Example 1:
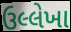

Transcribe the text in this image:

ઉલ્લેખા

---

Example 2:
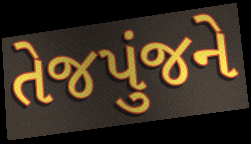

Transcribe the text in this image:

તેજપુંજને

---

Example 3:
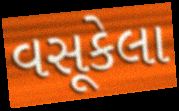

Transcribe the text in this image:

વસૂકેલા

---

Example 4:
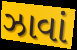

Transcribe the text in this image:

ઝાવાં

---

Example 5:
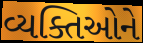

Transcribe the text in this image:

વ્યક્તિઓને